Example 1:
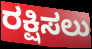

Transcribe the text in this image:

ರಕ್ಷಿಸಲು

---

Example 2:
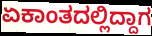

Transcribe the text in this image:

ಏಕಾಂತದಲ್ಲಿದ್ದಾಗ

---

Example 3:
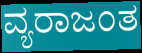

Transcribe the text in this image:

ವ್ಯರಾಜಂತ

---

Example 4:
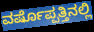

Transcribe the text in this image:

ವರ್ಷೊಪ್ಪತ್ತಿನಲ್ಲಿ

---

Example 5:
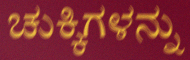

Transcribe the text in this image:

ಚುಕ್ಕಿಗಳನ್ನು